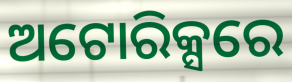
ଅଟୋରିକ୍ସରେ